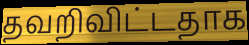
தவறிவிட்டதாக